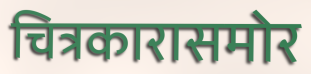
चित्रकारासमोर